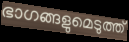
ഭാഗങ്ങളുമെടുത്ത്